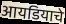
आयडियाचे